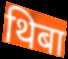
थिबा